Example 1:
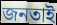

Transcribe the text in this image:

জনতাই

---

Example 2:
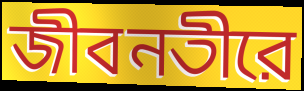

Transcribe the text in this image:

জীবনতীরে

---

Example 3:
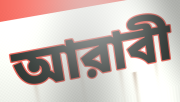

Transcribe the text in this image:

আরাবী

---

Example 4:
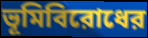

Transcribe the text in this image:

ভূমিবিরোধের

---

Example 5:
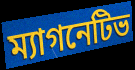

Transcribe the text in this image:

ম্যাগনেটিভ